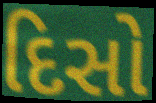
દિસો